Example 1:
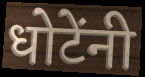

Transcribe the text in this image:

धोटेंनी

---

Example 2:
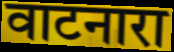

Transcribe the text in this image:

वाटनारा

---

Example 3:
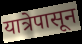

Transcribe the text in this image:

यात्रेपासून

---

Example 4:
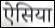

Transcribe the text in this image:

ऐसिया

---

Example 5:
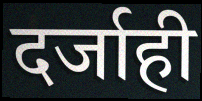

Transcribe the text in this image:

दर्जाही